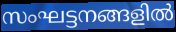
സംഘട്ടനങ്ങളിൽ